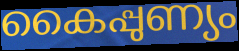
കൈപ്പുണ്യം